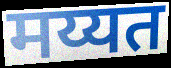
मय्यत